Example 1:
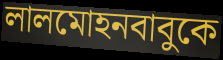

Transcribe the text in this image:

লালমোহনবাবুকে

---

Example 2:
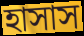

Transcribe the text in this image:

হাসাস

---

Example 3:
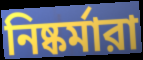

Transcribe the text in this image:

নিষ্কর্মারা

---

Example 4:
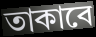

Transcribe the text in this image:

তাকাবে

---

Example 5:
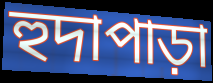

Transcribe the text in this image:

হুদাপাড়া